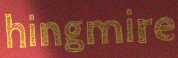
hingmire